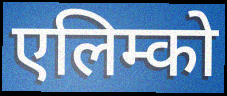
एलिम्को